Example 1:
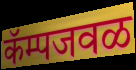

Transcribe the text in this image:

कॅम्पजवळ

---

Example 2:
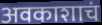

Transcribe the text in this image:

अवकाशाचं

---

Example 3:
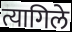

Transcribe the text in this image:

त्यागिले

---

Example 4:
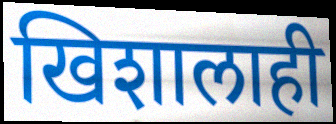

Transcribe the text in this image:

खिशालाही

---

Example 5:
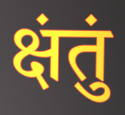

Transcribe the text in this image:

क्षंतुं